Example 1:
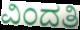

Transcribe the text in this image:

ವಿಂದತಿ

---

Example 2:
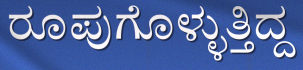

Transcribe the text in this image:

ರೂಪುಗೊಳ್ಳುತ್ತಿದ್ದ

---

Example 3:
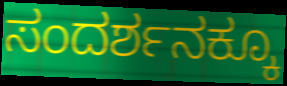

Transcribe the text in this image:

ಸಂದರ್ಶನಕ್ಕೂ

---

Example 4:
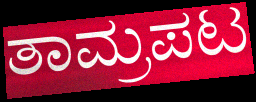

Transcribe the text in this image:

ತಾಮ್ರಪಟ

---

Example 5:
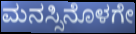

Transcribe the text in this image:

ಮನಸ್ಸಿನೊಳಗೇ